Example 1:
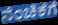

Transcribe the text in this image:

ನೆಂಚಿಕೆಗೆ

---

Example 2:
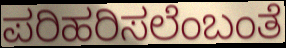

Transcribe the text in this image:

ಪರಿಹರಿಸಲೆಂಬಂತೆ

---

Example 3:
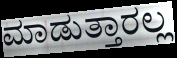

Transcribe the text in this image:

ಮಾಡುತ್ತಾರಲ್ಲ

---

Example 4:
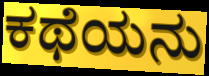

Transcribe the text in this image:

ಕಥೆಯನು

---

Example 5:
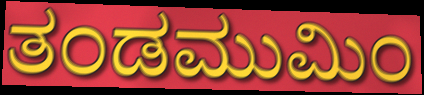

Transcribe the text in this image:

ತಂಡಮುಮಿಂ